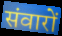
संवारों